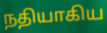
நதியாகிய